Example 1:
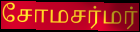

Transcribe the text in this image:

சோமசர்மர்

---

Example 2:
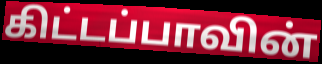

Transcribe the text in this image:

கிட்டப்பாவின்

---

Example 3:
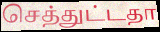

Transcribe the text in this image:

செத்துட்டதா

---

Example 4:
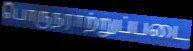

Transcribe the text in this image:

பொருநராற்றுப்படை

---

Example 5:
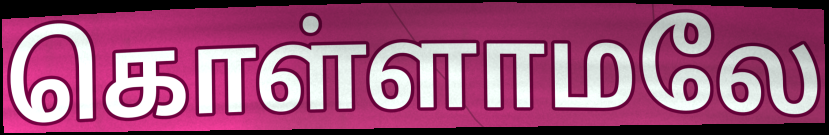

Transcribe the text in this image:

கொள்ளாமலே